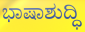
ಭಾಷಾಶುದ್ಧಿ